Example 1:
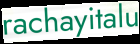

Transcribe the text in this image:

rachayitalu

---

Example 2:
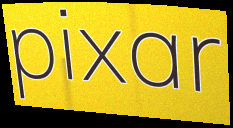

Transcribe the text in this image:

pixar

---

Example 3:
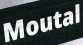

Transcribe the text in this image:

Moutal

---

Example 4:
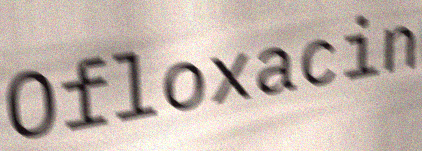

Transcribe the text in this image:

Ofloxacin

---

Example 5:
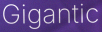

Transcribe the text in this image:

Gigantic